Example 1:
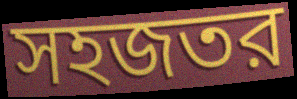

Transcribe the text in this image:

সহজতর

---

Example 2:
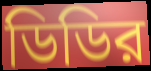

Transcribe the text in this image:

ডিডির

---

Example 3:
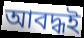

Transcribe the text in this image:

আবদ্ধই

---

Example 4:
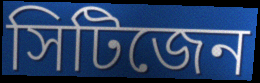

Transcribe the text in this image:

সিটিজেন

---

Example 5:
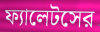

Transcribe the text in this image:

ফ্যালেটসের